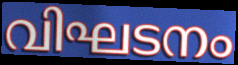
വിഘടനം